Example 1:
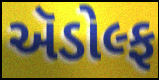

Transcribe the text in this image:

ઍડોલ્ફ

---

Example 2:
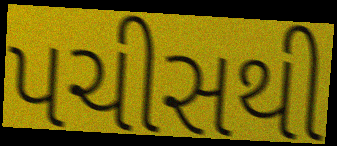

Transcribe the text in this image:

પચીસથી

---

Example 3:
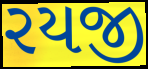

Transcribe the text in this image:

રયજી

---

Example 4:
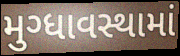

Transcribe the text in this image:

મુગ્ધાવસ્થામાં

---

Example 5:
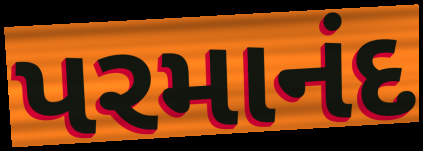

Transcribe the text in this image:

પરમાનંદ